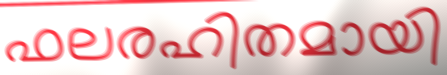
ഫലരഹിതമായി